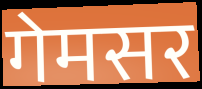
गेमसर